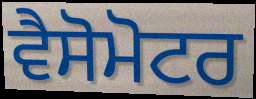
ਵੈਸੋਮੋਟਰ